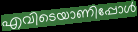
എവിടെയാണിപ്പോൾ